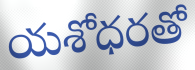
యశోధరతో